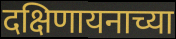
दक्षिणायनाच्या